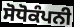
ਸੋਧੋਕੰਪਨੀ